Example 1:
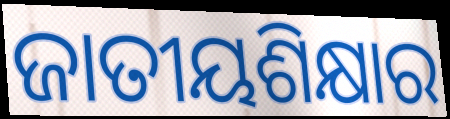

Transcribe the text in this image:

ଜାତୀୟଶିକ୍ଷାର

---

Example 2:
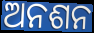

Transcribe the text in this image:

ଅନଶନ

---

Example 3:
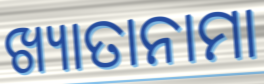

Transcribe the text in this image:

ଖ୍ୟାତାନାମା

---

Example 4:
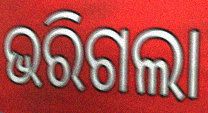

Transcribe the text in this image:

ଭରିଗଲା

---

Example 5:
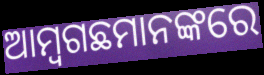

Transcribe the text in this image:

ଆମ୍ବଗଛମାନଙ୍କରେ